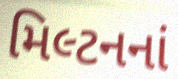
મિલ્ટનનાં